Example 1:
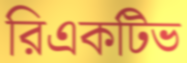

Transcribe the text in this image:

রিএকটিভ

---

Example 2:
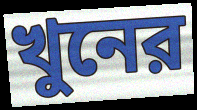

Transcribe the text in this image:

খুনের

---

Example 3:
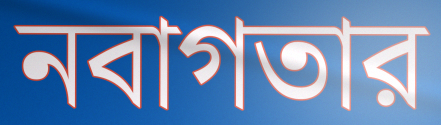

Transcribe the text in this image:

নবাগতার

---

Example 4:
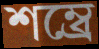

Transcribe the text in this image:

শম্ব্রে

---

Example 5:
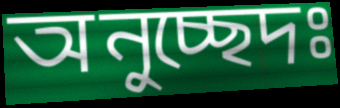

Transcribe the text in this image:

অনুচ্ছেদঃ